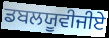
ਡਬਲਯੂਵੀਜੀਏ